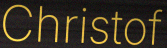
Christof